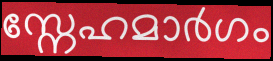
സ്നേഹമാർഗം